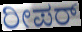
ರೀಪರ್